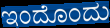
ಇಂದೊಂದು